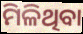
ମିଳିଥିବା